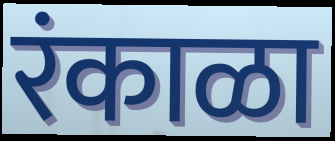
रंकाळा